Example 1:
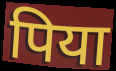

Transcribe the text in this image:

पिया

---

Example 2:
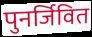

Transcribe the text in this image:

पुनर्जिवित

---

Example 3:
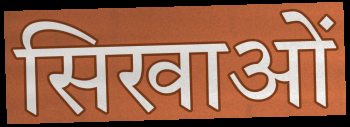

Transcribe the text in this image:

सिखाओं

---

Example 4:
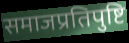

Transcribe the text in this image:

समाजप्रतिपुष्टि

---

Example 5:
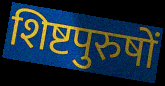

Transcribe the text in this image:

शिष्टपुरुषों